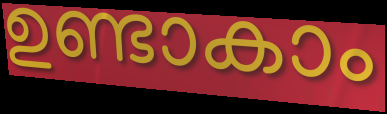
ഉണ്ടാകാം